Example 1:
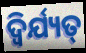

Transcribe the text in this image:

ଦ୍ୱିର୍ଯ୍ୟତ୍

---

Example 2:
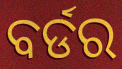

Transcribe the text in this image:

ବର୍ଡର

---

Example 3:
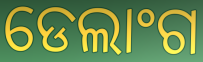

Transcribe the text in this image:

ଡେଲାଂଗ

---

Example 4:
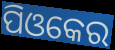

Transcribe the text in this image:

ପିଓକେର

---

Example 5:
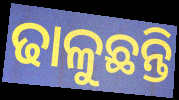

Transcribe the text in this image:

ଢାଳୁଛନ୍ତି